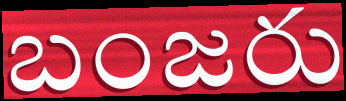
బంజరు